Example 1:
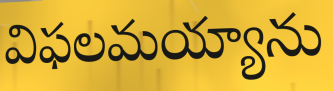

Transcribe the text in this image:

విఫలమయ్యాను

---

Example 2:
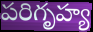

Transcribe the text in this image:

పరిగృహ్య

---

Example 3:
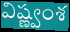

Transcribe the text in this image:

విష్ణ్వంశ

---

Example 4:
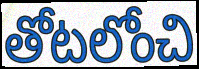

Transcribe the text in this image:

తోటలోంచి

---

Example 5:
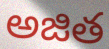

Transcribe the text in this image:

అజిత